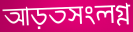
আড়তসংলগ্ন